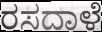
ರಸದಾಳೆ